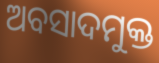
ଅବସାଦମୁକ୍ତ